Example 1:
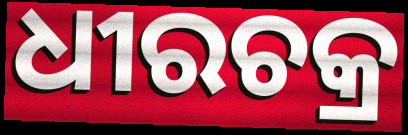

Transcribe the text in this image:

ଧୀରଚକ୍ର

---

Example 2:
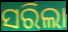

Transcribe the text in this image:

ସରିଲା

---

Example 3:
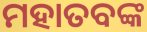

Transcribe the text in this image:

ମହାତବଙ୍କ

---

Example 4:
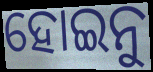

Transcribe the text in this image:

ହୋଇନୁ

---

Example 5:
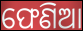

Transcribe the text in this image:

ଫେଣିଆ